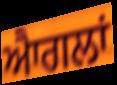
ਐਾਗਲਾਂ